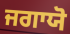
ਜਗਾਯੋ